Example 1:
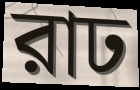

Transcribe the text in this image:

রাঢ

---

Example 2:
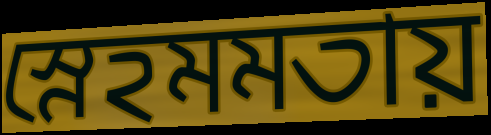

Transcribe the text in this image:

স্নেহমমতায়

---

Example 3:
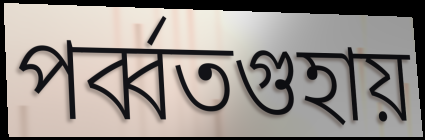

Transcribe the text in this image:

পর্ব্বতগুহায়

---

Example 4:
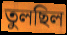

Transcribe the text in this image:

তুলছিল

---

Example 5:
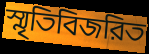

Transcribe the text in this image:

স্মৃতিবিজরিত